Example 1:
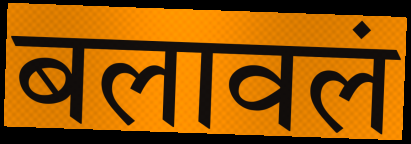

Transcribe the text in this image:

बलावलं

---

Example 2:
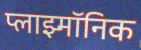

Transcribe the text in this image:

प्लाझ्मॉनिक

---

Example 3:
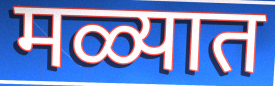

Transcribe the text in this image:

मळ्यात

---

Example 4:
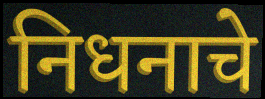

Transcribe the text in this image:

निधनाचे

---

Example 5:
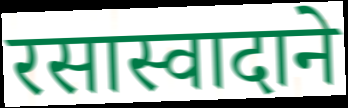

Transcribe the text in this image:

रसास्वादाने